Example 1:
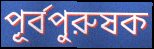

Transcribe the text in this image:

পূৰ্বপুৰুষক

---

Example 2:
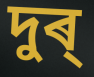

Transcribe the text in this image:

দুৰ্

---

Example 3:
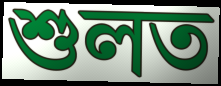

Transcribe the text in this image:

শুলত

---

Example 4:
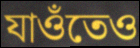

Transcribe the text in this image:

যাওঁতেও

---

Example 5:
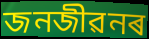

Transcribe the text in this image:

জনজীৱনৰ